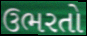
ઉભરતો